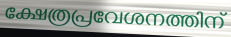
ക്ഷേത്രപ്രവേശനത്തിന്